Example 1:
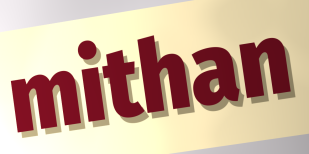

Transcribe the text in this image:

mithan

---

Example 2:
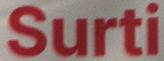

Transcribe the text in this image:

Surti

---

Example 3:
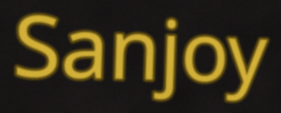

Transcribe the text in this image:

Sanjoy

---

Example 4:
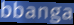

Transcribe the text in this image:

bbanga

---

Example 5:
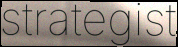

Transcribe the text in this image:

strategist